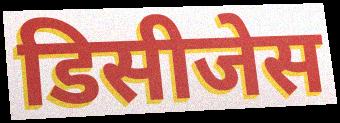
डिसीजेस